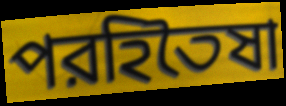
পরহিতৈষা